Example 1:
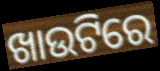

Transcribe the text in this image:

ଖାଉଟିରେ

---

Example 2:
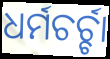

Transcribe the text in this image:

ଧର୍ମଚର୍ଚ୍ଚା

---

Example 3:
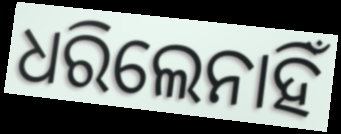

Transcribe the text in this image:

ଧରିଲେନାହିଁ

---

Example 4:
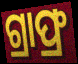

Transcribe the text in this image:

ଗ୍ରାଫ୍ର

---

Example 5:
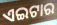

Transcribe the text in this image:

ଏଇଟାର